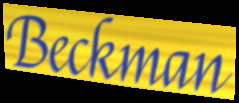
Beckman